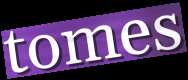
tomes